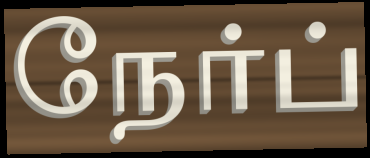
நேர்ப்